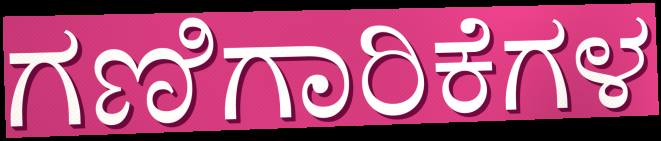
ಗಣಿಗಾರಿಕೆಗಳ